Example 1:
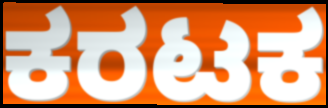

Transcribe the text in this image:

ಕರಟಕ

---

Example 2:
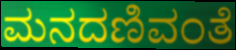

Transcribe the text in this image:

ಮನದಣಿವಂತೆ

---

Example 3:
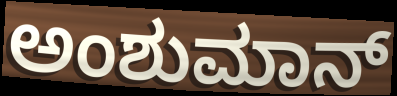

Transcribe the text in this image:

ಅಂಶುಮಾನ್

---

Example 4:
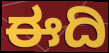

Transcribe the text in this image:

ಈದಿ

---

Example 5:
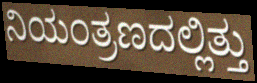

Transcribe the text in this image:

ನಿಯಂತ್ರಣದಲ್ಲಿತ್ತು